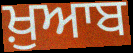
ਖ਼ੁਆਬ